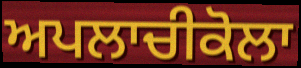
ਅਪਲਾਚੀਕੋਲਾ